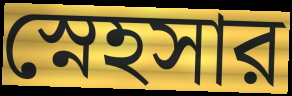
স্নেহসার